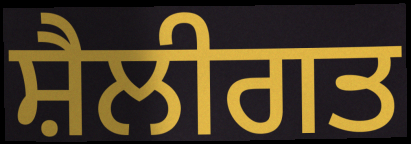
ਸ਼ੈਲੀਗਤ